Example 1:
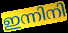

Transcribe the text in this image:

ഇന്നിനി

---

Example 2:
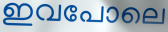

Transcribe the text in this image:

ഇവപോലെ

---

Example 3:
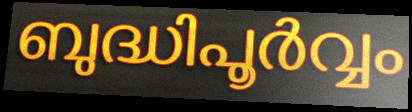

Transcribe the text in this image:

ബുദ്ധിപൂർവ്വം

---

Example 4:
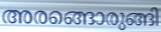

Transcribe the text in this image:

അരങ്ങൊരുങ്ങി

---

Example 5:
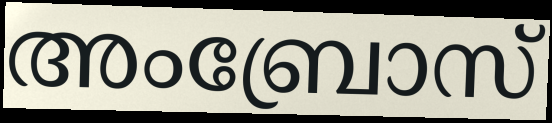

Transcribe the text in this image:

അംബ്രോസ്